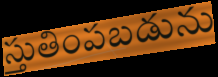
స్తుతింపబడును